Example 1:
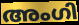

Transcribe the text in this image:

അംഗി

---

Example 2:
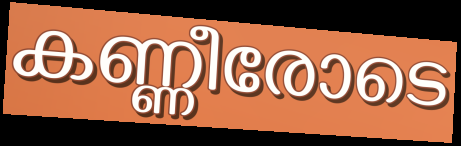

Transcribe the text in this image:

കണ്ണീരോടെ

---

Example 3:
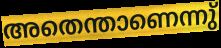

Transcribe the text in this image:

അതെന്താണെന്നു്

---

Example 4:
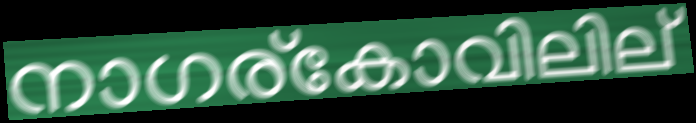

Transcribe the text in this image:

നാഗര്കോവിലില്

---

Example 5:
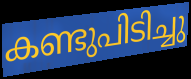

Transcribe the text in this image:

കണ്ടുപിടിച്ചു